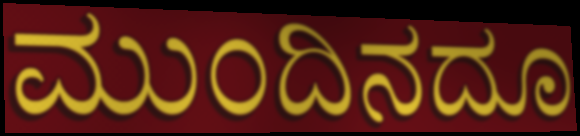
ಮುಂದಿನದೂ